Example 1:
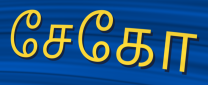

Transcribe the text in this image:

சேகோ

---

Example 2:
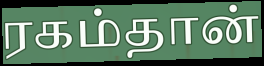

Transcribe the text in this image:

ரகம்தான்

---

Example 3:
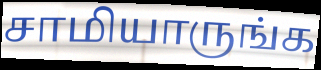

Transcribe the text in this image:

சாமியாருங்க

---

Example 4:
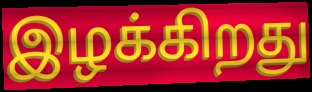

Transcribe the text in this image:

இழக்கிறது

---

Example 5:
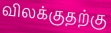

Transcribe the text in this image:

விலக்குதற்கு